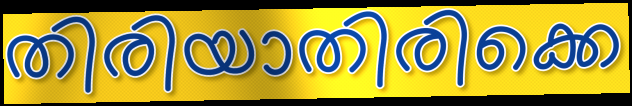
തിരിയാതിരിക്കെ